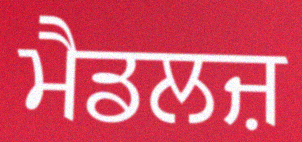
ਮੈਡਲਜ਼